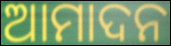
ଆମାଦନ